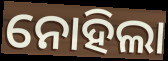
ନୋହିଲା